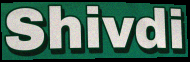
Shivdi